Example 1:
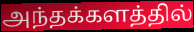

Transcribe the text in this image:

அந்தக்களத்தில்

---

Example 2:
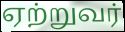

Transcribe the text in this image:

ஏற்றுவர்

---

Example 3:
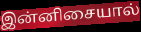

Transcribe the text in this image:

இன்னிசையால்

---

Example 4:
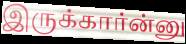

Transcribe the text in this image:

இருக்கார்ன்னு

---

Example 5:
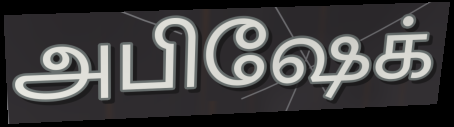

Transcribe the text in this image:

அபிஷேக்